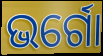
ଭର୍ଗୋ